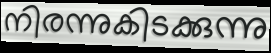
നിരന്നുകിടക്കുന്നു